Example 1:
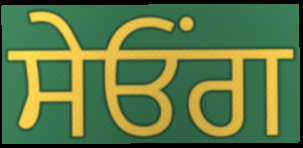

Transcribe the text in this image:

ਸੇਓਂਗ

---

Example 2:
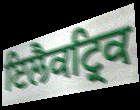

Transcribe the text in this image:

ਇਲੈਕਟ੍ਰਿਕ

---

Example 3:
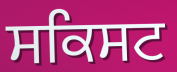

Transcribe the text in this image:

ਸਕਿਸਟ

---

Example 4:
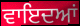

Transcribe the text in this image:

ਵਾਇਦਆਂ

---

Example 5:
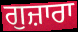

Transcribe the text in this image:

ਗੁਜ਼ਾਰਾ